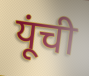
यूंची